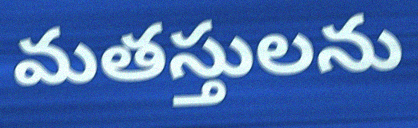
మతస్తులను